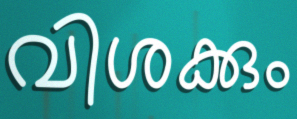
വിശക്കും